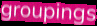
groupings